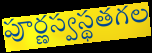
పూర్ణస్వస్థతగల